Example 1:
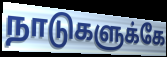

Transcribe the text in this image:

நாடுகளுக்கே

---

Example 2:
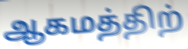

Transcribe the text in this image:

ஆகமத்திற்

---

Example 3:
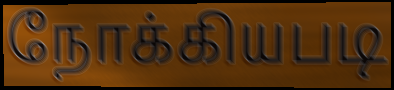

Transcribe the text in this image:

நோக்கியபடி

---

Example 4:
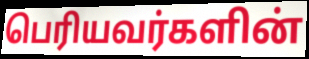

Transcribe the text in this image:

பெரியவர்களின்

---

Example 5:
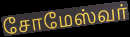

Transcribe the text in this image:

சோமேஸ்வர்